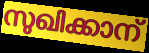
സുഖിക്കാന്